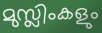
മുസ്ലിംകളും